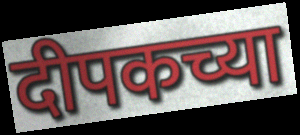
दीपकच्या